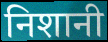
निशानी